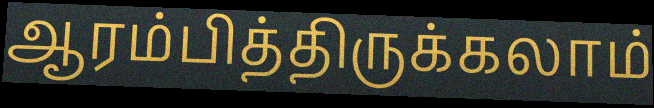
ஆரம்பித்திருக்கலாம்